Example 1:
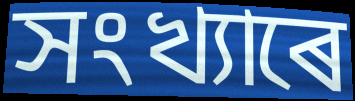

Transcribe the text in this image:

সংখ্যাৰে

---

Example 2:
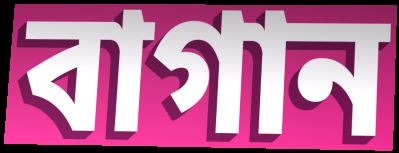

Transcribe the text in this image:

বাগান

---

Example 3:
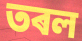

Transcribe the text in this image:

তৰল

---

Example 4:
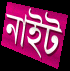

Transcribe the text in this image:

নাইট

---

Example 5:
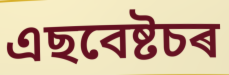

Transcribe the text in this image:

এছবেষ্টচৰ